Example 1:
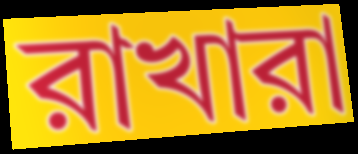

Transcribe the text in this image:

রাখারা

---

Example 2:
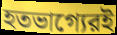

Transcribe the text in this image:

হতভাগ্যেরই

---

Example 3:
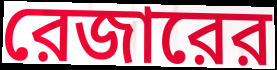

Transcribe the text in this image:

রেজারের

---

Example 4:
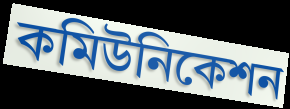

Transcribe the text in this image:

কমিউনিকেশন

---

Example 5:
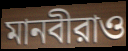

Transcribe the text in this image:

মানবীরাও